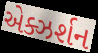
એક્ઝર્શન